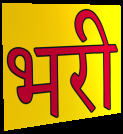
भरी